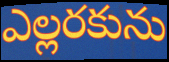
ఎల్లరకును